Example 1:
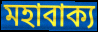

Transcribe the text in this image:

মহাবাক্য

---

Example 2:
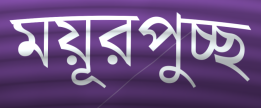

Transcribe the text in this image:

ময়ূরপুচ্ছ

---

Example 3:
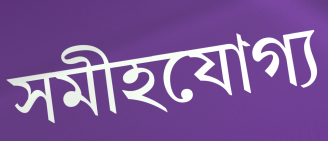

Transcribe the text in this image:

সমীহযোগ্য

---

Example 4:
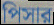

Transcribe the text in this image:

পিসার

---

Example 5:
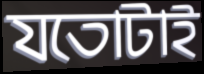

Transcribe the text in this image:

যতোটাই